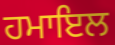
ਹਮਾਇਲ